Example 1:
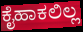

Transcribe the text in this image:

ಕೈಹಾಕಲಿಲ್ಲ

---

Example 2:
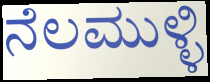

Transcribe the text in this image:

ನೆಲಮುಳ್ಳಿ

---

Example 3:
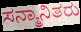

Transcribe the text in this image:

ಸನ್ಮಾನಿತರು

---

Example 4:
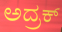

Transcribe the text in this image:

ಅದ್ರಕ್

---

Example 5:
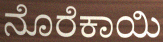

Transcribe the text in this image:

ನೊರೆಕಾಯಿ